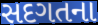
સદગતના